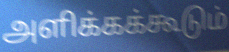
அளிக்கக்கூடும்